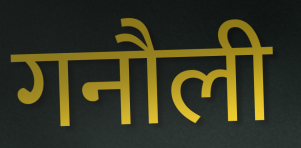
गनौली